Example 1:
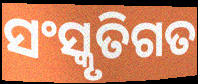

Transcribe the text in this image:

ସଂସ୍କୃତିଗତ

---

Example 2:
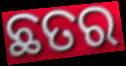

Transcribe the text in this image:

ଛତର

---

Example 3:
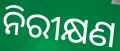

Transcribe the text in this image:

ନିରୀକ୍ଷଣ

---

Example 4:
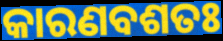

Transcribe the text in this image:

କାରଣବଶତଃ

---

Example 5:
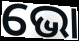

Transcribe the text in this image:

ଭୋ